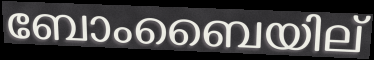
ബോംബൈയില്